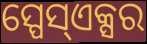
ସ୍ପେସ୍ଏକ୍ସର